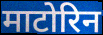
माटोरिन